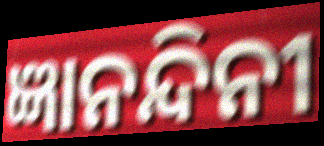
ଜ୍ଞାନନ୍ଦିନୀ